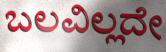
ಬಲವಿಲ್ಲದೇ